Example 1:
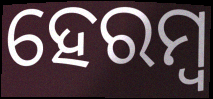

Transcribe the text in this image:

ହେରମ୍ୱ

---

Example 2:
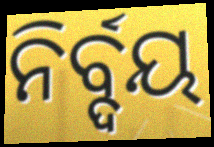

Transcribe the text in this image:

ନିର୍ବ୍ଦୟ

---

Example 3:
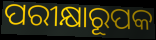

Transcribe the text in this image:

ପରୀକ୍ଷାରୂପକ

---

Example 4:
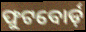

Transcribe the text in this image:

ଫୁଟବୋର୍ଡ଼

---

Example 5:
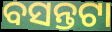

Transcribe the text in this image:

ବସନ୍ତଟା